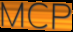
MCP